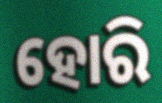
ହୋରି